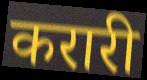
करारी